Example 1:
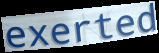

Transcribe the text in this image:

exerted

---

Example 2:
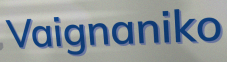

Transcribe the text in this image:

Vaignaniko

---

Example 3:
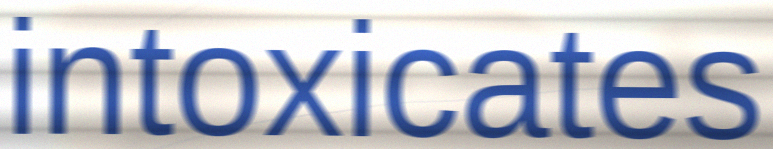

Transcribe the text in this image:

intoxicates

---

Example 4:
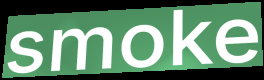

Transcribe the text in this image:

smoke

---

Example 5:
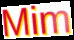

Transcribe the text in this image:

Mim